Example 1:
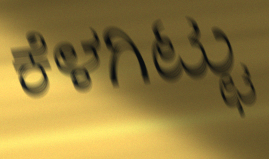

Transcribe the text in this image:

ಕೆಳಗಿಟ್ಟು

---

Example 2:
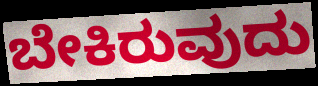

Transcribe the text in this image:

ಬೇಕಿರುವುದು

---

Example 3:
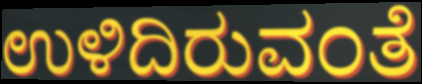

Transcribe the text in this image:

ಉಳಿದಿರುವಂತೆ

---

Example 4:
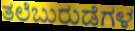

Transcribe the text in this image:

ತಲೆಬುರುಡೆಗಳ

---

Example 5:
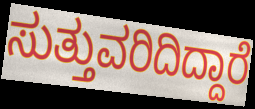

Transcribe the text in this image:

ಸುತ್ತುವರಿದಿದ್ದಾರೆ